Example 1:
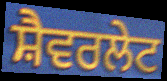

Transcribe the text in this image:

ਸ਼ੈਵਰਲੇਟ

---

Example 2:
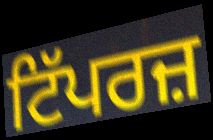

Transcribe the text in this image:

ਟਿੱਪਰਜ਼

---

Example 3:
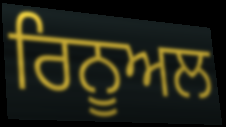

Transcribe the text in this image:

ਰਿਨੂਅਲ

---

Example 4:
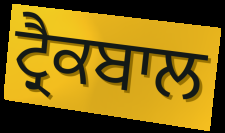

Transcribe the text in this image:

ਟ੍ਰੈਕਬਾਲ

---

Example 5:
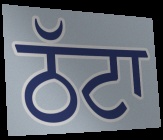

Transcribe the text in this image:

ਠੱਟਾ